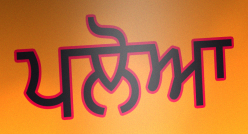
ਪਲੋਆ